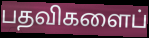
பதவிகளைப்